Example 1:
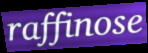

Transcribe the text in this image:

raffinose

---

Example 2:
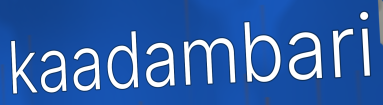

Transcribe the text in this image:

kaadambari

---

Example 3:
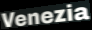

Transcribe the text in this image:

Venezia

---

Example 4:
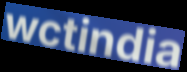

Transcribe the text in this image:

wctindia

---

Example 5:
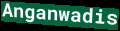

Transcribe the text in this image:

Anganwadis